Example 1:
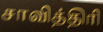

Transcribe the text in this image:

சாவித்திரி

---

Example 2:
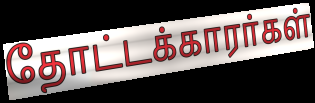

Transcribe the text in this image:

தோட்டக்காரர்கள்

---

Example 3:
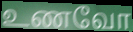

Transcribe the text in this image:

உணவோ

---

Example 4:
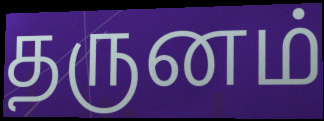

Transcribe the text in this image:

தருனம்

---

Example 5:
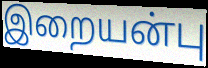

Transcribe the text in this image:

இறையன்பு